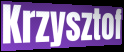
Krzysztof